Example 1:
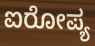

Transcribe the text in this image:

ಐರೋಪ್ಯ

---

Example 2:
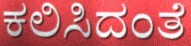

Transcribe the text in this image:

ಕಲಿಸಿದಂತೆ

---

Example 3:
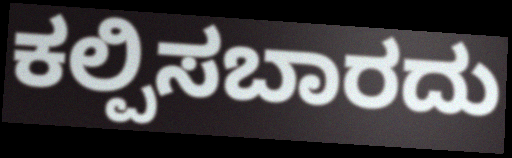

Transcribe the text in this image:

ಕಲ್ಪಿಸಬಾರದು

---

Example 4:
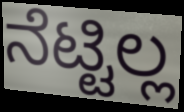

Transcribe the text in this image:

ನೆಟ್ಟಿಲ್ಲ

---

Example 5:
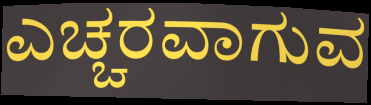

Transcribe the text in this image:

ಎಚ್ಚರವಾಗುವ